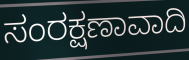
ಸಂರಕ್ಷಣಾವಾದಿ